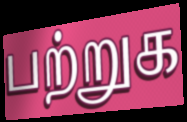
பற்றுக